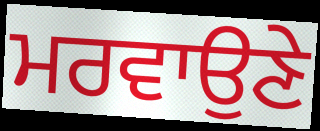
ਮਰਵਾਉਣੇ